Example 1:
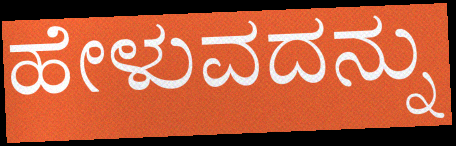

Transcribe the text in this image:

ಹೇಳುವದನ್ನು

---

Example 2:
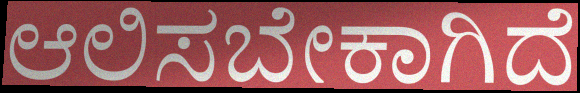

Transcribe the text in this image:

ಆಲಿಸಬೇಕಾಗಿದೆ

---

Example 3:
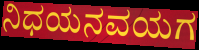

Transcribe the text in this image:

ನಿಧಯನವಯಗ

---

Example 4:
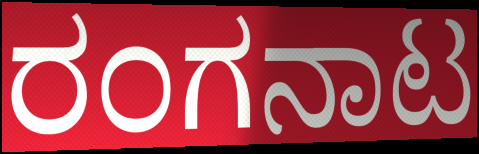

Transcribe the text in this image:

ರಂಗನಾಟ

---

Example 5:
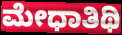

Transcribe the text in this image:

ಮೇಧಾತಿಥಿ